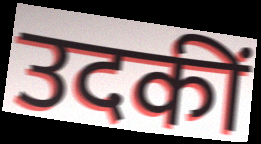
उदकीं